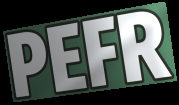
PEFR